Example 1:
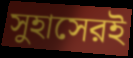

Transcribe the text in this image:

সুহাসেরই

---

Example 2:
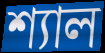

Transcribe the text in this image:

শ্যাল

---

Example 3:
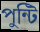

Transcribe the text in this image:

পুন্টি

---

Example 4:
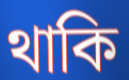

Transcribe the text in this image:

থাকি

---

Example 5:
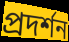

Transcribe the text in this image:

প্রদর্শন